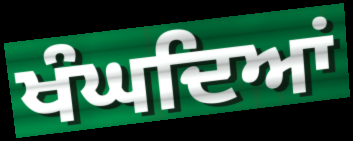
ਖੰਘਦਿਆਂ